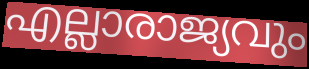
എല്ലാരാജ്യവും